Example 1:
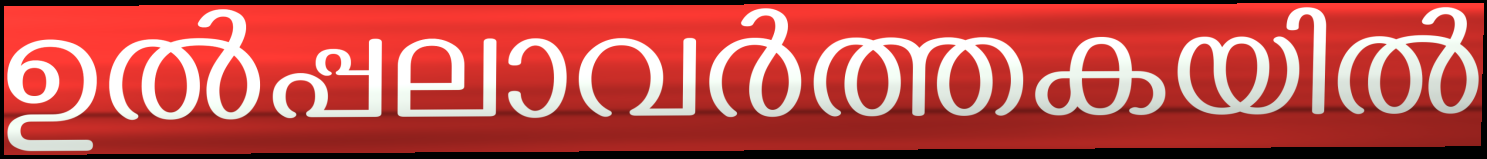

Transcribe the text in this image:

ഉൽപ്പലാവർത്തകയിൽ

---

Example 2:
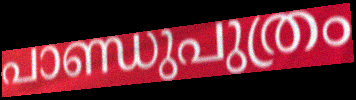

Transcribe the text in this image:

പാണ്ഡുപുത്രം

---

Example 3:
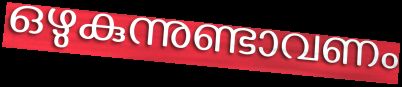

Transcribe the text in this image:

ഒഴുകുന്നുണ്ടാവണം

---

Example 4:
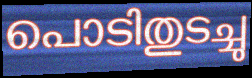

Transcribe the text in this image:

പൊടിതുടച്ചു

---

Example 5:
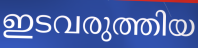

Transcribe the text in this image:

ഇടവരുത്തിയ